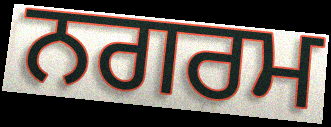
ਨਗਰਮ